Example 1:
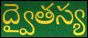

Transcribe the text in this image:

ద్వైతస్య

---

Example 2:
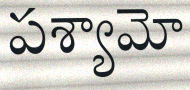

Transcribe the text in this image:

పశ్యామో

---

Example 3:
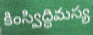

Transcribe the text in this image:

కింస్విద్ధిమస్య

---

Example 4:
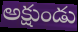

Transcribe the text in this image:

అక్షుండు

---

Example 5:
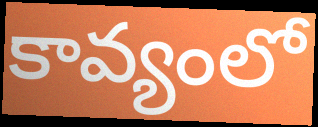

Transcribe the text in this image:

కావ్యంలో